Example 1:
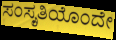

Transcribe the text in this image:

ಸಂಸ್ಕೃತಿಯೊಂದೇ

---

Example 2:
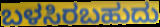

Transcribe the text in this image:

ಬಳಸಿರಬಹುದು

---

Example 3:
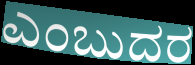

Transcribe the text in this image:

ಎಂಬುದರ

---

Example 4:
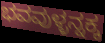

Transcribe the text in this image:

ಭವವುಳ್ಳನ್ನಕ್ಕ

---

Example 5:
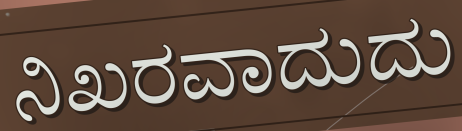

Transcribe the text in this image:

ನಿಖರವಾದುದು